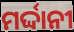
ମର୍ଦ୍ଦାନୀ